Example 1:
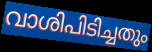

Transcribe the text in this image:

വാശിപിടിച്ചതും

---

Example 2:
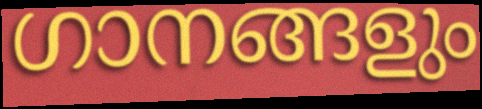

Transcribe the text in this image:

ഗാനങ്ങളും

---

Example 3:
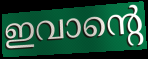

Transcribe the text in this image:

ഇവാന്റെ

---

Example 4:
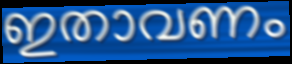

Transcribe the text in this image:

ഇതാവണം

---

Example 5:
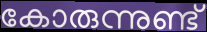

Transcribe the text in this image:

കോരുന്നുണ്ട്